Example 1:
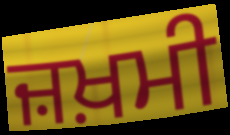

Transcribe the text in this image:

ਜ਼ਖ਼ਮੀ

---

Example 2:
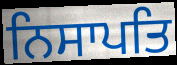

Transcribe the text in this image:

ਨਿਸਾਪਤਿ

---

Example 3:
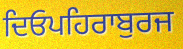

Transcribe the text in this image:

ਦਿਓਪਹਿਰਾਬੁਰਜ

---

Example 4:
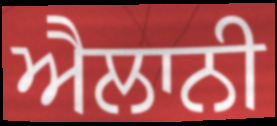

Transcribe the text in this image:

ਐਲਾਨੀ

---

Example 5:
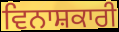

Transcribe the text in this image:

ਵਿਨਾਸ਼ਕਾਰੀ